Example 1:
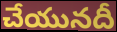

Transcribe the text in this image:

చేయునదీ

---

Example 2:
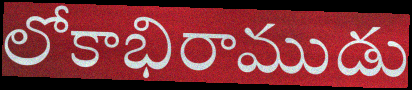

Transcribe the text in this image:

లోకాభిరాముడు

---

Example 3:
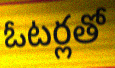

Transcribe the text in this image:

ఓటర్లతో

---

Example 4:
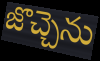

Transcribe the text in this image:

జొచ్చెను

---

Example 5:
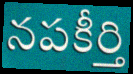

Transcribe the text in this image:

నపకీర్తి